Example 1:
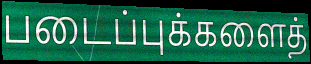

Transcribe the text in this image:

படைப்புக்களைத்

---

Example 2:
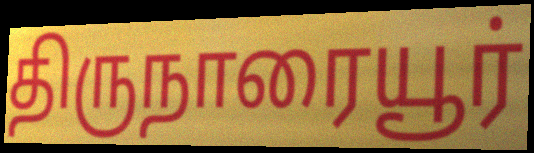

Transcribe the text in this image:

திருநாரையூர்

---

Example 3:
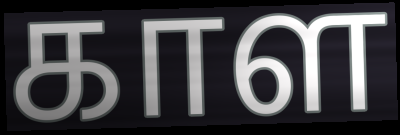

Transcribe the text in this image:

காள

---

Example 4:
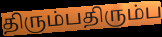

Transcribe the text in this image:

திரும்பதிரும்ப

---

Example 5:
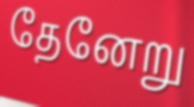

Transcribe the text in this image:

தேனேறு